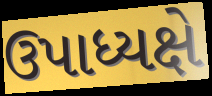
ઉપાધ્યક્ષે